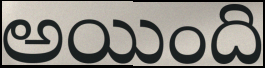
అయింది